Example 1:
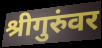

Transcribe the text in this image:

श्रीगुरुंवर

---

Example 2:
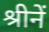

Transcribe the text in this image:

श्रीनें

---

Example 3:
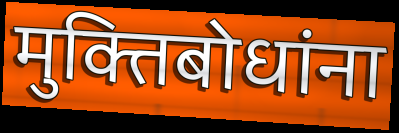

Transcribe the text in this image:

मुक्तिबोधांना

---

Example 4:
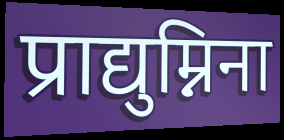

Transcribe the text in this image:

प्राद्युम्निना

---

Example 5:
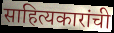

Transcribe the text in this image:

साहित्यकारांची